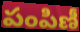
పంపిణీ